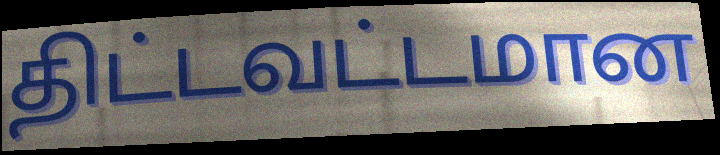
திட்டவட்டமான